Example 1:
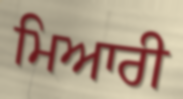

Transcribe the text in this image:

ਮਿਆਰੀ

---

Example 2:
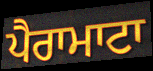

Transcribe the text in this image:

ਪੈਰਾਮਾਟਾ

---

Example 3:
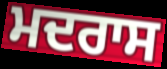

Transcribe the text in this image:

ਮਦਰਾਸ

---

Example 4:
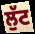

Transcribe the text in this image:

ਲੁੱਟ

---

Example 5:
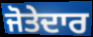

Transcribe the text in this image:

ਜੋਤੇਦਾਰ